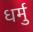
धर्मु